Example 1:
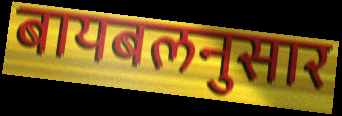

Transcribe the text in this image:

बायबलनुसार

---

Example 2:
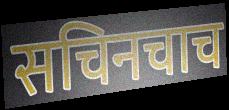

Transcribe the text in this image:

सचिनचाच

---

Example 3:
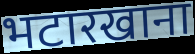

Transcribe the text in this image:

भटारखाना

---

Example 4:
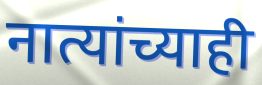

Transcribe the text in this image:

नात्यांच्याही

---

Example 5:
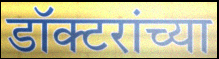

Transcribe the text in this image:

डॉक्टरांच्या